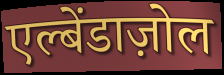
एल्बेंडाज़ोल